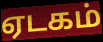
ஏடகம்